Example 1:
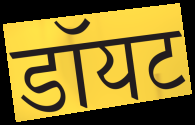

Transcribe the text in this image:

डॉयट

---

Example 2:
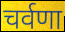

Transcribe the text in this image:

चर्वणा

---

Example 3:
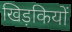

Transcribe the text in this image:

खिड़कियों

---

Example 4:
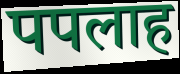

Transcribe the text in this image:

पपलाह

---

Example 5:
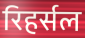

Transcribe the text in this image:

रिहर्सल